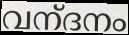
വന്‌ദനം